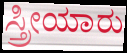
ಸ್ತ್ರೀಯಾರು